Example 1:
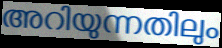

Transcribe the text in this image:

അറിയുന്നതിലും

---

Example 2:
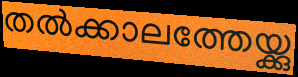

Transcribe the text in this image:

തൽക്കാലത്തേയ്ക്കു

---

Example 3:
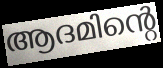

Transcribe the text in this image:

ആദമിന്റെ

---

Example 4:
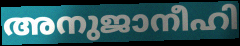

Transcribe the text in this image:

അനുജാനീഹി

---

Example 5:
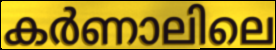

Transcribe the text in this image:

കർണാലിലെ